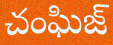
చంఘిజ్